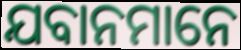
ଯବାନମାନେ